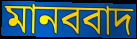
মানববাদ